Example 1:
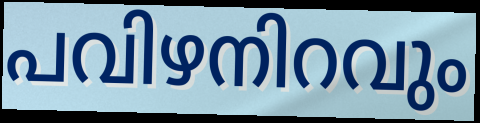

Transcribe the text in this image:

പവിഴനിറവും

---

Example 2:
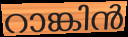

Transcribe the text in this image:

റാങ്കിൻ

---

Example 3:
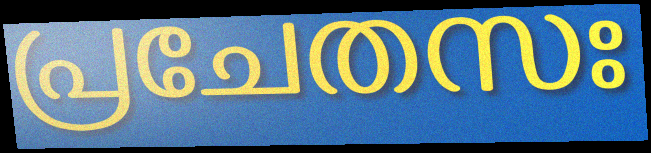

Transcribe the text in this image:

പ്രചേതസഃ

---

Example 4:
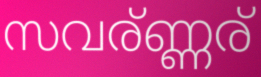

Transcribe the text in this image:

സവര്ണ്ണര്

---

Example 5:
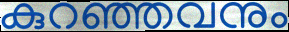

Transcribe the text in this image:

കുറഞ്ഞവനും